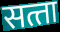
सत्‍ता